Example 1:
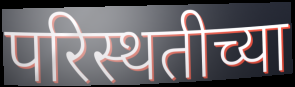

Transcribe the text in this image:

परिस्थतीच्या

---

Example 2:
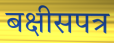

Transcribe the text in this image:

बक्षीसपत्र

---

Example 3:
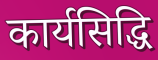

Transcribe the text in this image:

कार्यसिद्धि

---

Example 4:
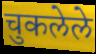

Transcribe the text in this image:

चुकलेले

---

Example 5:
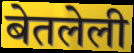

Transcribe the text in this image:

बेतलेली